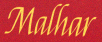
Malhar